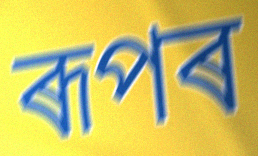
ৰূপৰ